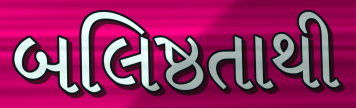
બલિષ્ઠતાથી